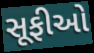
સૂફીઓ